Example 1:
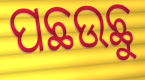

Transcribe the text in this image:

ପଛଉଛୁ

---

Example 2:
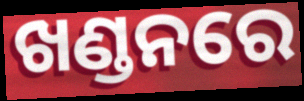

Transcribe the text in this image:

ଖଣ୍ଡନରେ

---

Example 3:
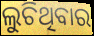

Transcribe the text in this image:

ଲୁଚିଥିବାର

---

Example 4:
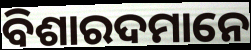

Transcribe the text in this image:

ବିଶାରଦମାନେ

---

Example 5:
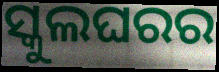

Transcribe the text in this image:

ସ୍କୁଲଘରର